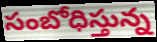
సంబోధిస్తున్న